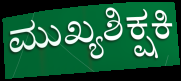
ಮುಖ್ಯಶಿಕ್ಷಕಿ